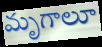
మృగాలూ